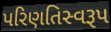
પરિણતિસ્વરૂપ